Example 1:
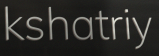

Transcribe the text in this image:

kshatriy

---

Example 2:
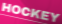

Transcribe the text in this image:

HOCKEY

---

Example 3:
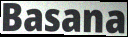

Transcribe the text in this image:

Basana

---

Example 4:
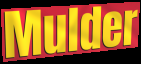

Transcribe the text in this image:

Mulder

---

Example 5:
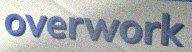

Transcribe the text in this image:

overwork